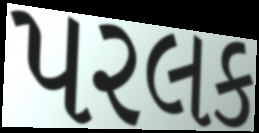
પરલક